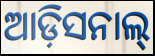
ଆଡ଼ିସନାଲ୍